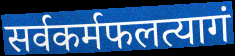
सर्वकर्मफलत्यागं